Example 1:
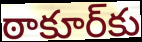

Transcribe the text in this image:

ఠాకూర్‌కు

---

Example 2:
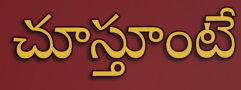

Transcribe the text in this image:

చూస్తూంటే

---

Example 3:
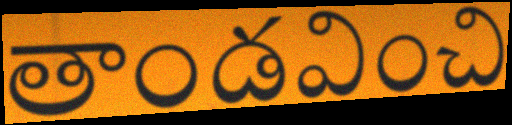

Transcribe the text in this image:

తాండవించి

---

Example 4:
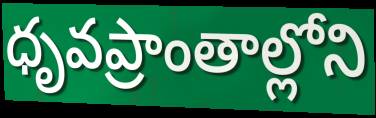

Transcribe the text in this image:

ధృవప్రాంతాల్లోని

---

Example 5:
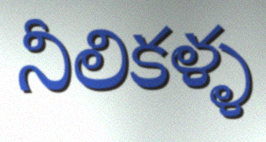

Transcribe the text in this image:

నీలికళ్ళ